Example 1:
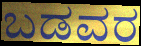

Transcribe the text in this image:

ಬಡವರ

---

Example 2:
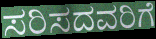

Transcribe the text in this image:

ಸರಿಸದವರಿಗೆ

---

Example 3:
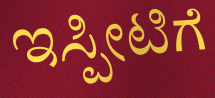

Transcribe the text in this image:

ಇಸ್ಪೀಟಿಗೆ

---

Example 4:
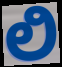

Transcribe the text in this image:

ಲಿ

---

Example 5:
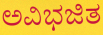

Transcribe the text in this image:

ಅವಿಭಜಿತ